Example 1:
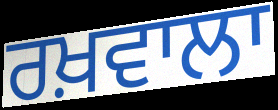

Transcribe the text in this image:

ਰਖ਼ਵਾਲਾ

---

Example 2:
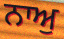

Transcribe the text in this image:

ਨਾਅੁ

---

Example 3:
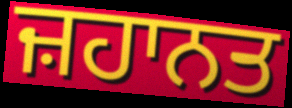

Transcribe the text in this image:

ਜ਼ਹਾਨਤ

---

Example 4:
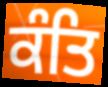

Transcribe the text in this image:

ਕੰਤਿ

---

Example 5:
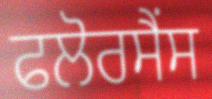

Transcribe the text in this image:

ਫਲੋਰਸੈਂਸ